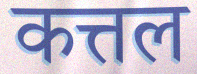
कत्तल